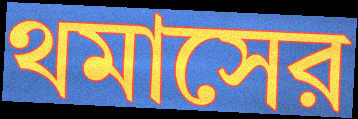
থমাসের